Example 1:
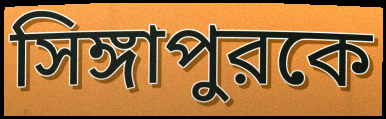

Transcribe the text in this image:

সিঙ্গাপুরকে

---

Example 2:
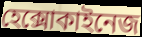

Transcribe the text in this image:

হেক্সোকাইনেজ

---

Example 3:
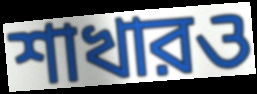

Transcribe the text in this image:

শাখারও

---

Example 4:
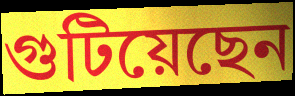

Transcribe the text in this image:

গুটিয়েছেন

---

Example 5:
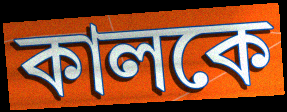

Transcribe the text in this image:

কালকে